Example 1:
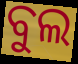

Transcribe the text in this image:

ବୁଲ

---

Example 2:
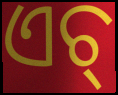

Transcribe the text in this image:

ଏଚ୍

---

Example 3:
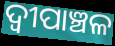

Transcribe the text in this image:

ଦ୍ୱୀପାଞ୍ଚଳ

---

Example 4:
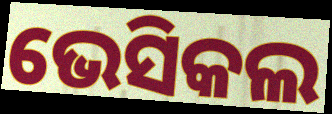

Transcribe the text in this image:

ଭେସିକଲ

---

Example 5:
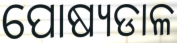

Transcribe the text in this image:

ପୋଷ୍ୟଡାଳ